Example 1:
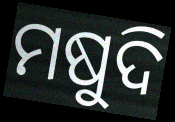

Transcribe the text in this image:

ମଷୁଦି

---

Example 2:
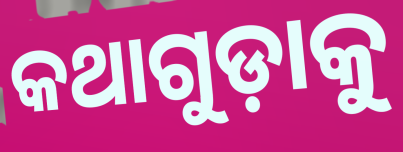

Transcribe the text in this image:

କଥାଗୁଡ଼ାକୁ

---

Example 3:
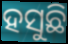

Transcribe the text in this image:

ହସୁଛି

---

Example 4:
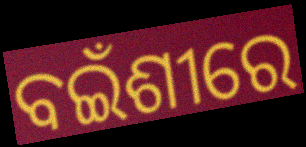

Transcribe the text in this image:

ବଇଁଶୀରେ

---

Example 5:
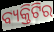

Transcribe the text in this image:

ବ୍ୟକ୍ତିଟିର